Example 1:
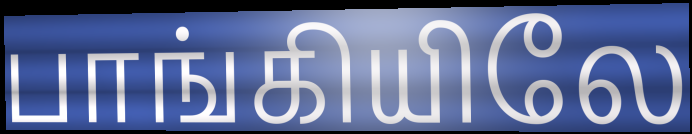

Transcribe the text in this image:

பாங்கியிலே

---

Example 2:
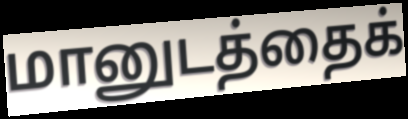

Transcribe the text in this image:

மானுடத்தைக்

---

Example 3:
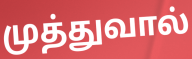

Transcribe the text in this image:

முத்துவால்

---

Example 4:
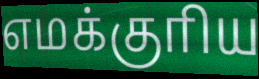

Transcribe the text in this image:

எமக்குரிய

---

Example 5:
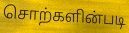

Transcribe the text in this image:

சொற்களின்படி